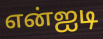
என்ஐடி